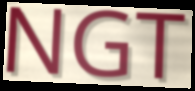
NGT